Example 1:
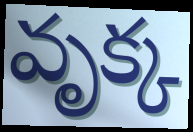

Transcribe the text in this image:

వృక్క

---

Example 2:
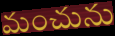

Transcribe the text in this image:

మంచును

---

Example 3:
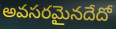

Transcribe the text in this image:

అవసరమైనదేదో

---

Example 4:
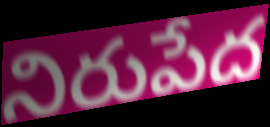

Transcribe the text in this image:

నిరుపేద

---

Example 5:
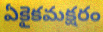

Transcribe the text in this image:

ఏకైకమక్షరం